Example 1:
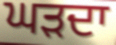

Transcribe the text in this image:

ਘੜਦਾ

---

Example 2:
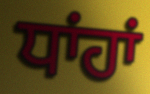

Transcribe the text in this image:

ਧਾਂਹਾਂ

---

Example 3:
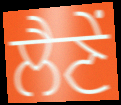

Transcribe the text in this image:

ਲੈਣੇਂ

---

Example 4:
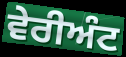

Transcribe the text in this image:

ਵੇਰੀਅੰਟ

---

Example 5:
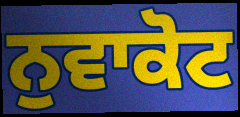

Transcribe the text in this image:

ਨੁਵਾਕੋਟ